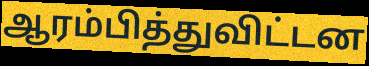
ஆரம்பித்துவிட்டன